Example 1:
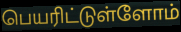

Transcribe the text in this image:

பெயரிட்டுள்ளோம்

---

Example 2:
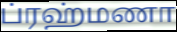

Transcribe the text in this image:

ப்ரஹ்மணா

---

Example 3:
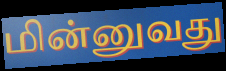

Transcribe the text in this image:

மின்னுவது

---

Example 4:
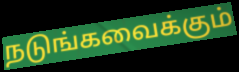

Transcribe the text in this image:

நடுங்கவைக்கும்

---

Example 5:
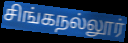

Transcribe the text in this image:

சிங்கநல்லூர்